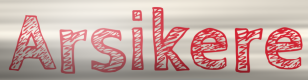
Arsikere